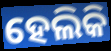
ହେଲିକି